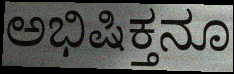
ಅಭಿಷಿಕ್ತನೂ